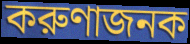
করুণাজনক